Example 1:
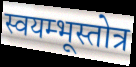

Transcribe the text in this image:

स्वयम्भूस्तोत्र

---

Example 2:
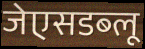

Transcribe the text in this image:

जेएसडब्‍लू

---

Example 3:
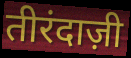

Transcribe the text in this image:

तीरंदाज़ी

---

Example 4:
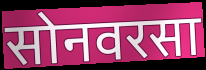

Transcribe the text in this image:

सोनवरसा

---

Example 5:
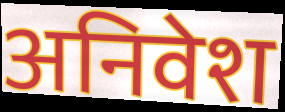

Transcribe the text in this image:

अनिवेश